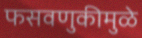
फसवणुकीमुळे